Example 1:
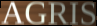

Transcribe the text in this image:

AGRIS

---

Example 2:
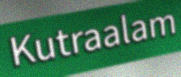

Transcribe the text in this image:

Kutraalam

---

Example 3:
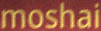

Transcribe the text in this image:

moshai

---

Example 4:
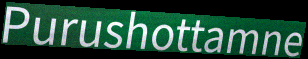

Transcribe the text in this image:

Purushottamne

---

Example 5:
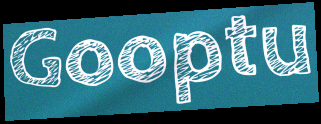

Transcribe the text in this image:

Gooptu